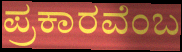
ಪ್ರಕಾರವೆಂಬ